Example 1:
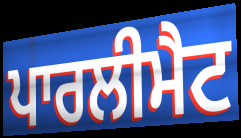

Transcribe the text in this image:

ਪਾਰਲੀਮੈਟ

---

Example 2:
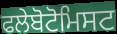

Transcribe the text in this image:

ਫਲੇਬੋਟੋਮਿਸਟ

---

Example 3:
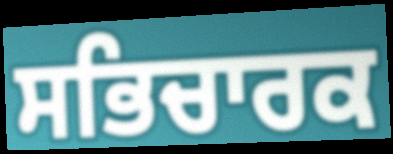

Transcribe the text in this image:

ਸਭਿਚਾਰਕ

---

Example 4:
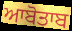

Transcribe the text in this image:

ਆਬੋਤਾਬ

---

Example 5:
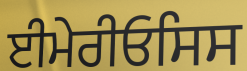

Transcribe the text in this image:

ਈਮੇਰੀਓਸਿਸ